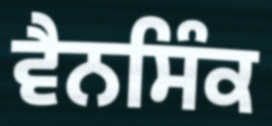
ਵੈਨਸਿੰਕ